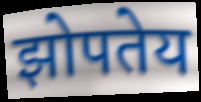
झोपतेय